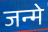
जन्मे